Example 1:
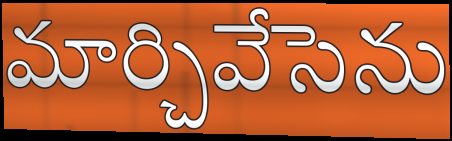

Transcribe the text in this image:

మార్చివేసెను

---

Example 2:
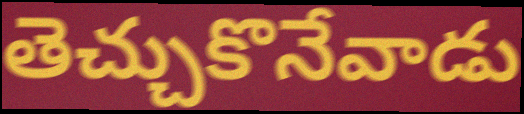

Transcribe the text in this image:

తెచ్చుకొనేవాడు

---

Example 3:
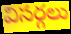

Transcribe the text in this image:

విసర్గలు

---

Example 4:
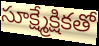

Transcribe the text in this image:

సూక్ష్మేక్షికతో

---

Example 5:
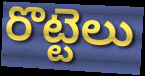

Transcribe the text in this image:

రొట్టెలు